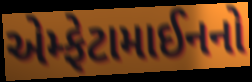
એમ્ફેટામાઈનનો